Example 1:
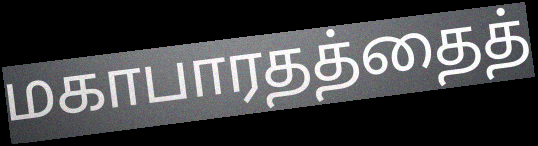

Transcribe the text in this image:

மகாபாரதத்தைத்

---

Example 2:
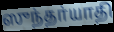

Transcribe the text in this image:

ஸுந்தர்யாதி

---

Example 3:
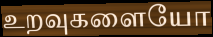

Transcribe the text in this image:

உறவுகளையோ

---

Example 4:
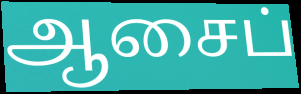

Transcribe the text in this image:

ஆசைப்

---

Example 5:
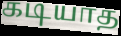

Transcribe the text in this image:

கடியாத